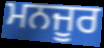
ਮਨਜੂਰ